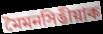
মৈমনসিঙীয়াক